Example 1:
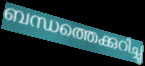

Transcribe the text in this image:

ബന്ധത്തെക്കുറിച്ചു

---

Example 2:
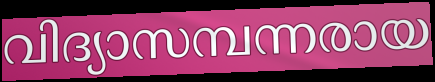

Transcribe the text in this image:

വിദ്യാസമ്പന്നരായ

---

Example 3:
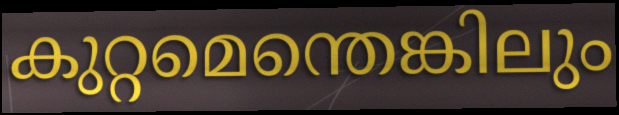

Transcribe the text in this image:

കുറ്റമെന്തെങ്കിലും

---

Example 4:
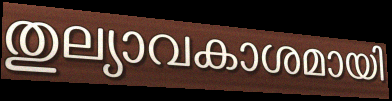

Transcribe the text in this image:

തുല്യാവകാശമായി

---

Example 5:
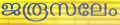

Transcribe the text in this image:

ജരൂസലേം